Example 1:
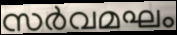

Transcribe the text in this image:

സർവമഘം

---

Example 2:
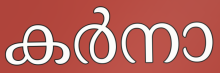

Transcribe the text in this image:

കർനാ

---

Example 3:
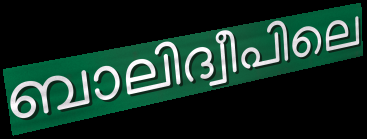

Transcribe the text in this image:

ബാലിദ്വീപിലെ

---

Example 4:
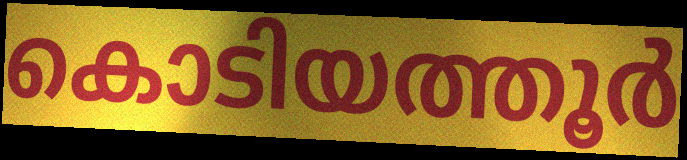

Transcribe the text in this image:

കൊടിയത്തൂർ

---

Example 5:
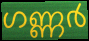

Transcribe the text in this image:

ഗണ്ണർ